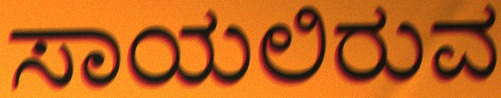
ಸಾಯಲಿರುವ